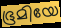
ഭൂമിയേ